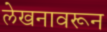
लेखनावरून